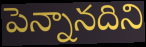
పెన్నానదిని